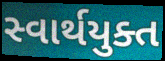
સ્વાર્થયુક્ત